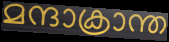
മന്ദാക്രാന്ത